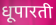
धूपारती